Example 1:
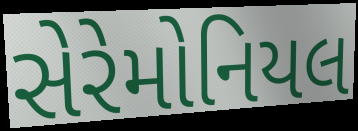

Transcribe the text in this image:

સેરેમોનિયલ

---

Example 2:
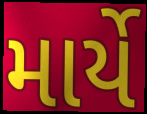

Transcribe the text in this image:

માર્યે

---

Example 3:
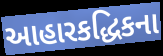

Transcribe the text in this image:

આહારકદ્ધિકના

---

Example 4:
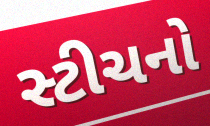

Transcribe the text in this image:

સ્ટીચનો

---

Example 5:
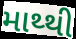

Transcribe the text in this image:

માથ્થી